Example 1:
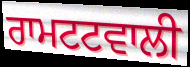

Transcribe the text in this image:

ਰਾਮਟਟਵਾਲੀ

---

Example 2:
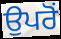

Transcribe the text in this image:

ਉਪਰੋਂ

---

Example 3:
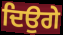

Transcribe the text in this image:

ਦਿਉਗੇ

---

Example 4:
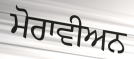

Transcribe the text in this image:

ਮੋਰਾਵੀਅਨ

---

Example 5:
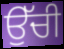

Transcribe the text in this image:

ਉੱਚੀ